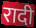
रादी